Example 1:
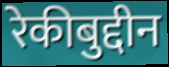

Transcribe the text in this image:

रेकीबुद्दीन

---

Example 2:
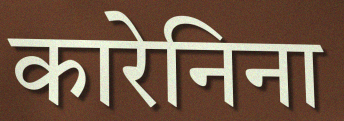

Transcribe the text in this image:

कारेनिना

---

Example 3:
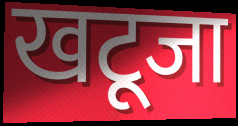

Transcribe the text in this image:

खटूजा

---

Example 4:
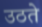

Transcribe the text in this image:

उठते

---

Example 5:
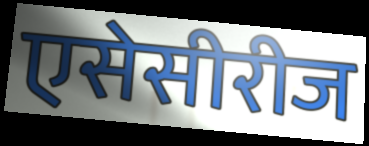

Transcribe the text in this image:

एसेसीरीज